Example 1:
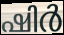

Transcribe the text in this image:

ഷിർ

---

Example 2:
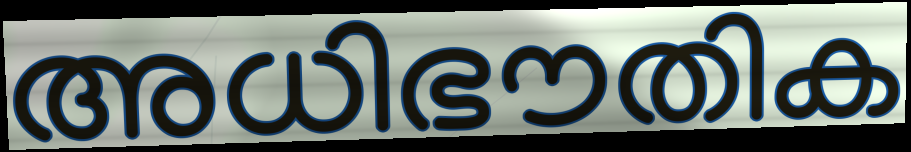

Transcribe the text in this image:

അധിഭൗതിക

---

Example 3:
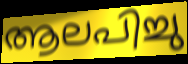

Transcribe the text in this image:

ആലപിച്ചു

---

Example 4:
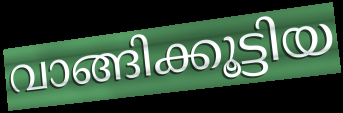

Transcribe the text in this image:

വാങ്ങിക്കൂട്ടിയ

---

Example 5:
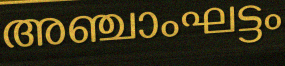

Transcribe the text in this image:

അഞ്ചാംഘട്ടം